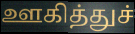
ஊகித்துச்